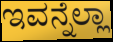
ಇವನ್ನೆಲ್ಲಾ